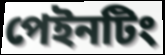
পেইনটিং